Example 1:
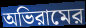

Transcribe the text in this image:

অভিরামের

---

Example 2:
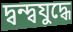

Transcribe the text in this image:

দ্বন্দ্বযুদ্ধে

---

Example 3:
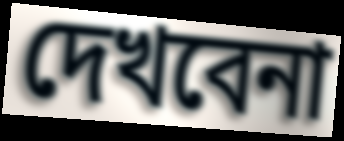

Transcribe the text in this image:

দেখবেনা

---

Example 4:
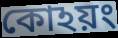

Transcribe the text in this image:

কোঽয়ং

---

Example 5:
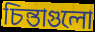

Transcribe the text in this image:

চিন্তাগুলো